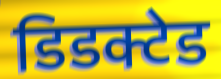
डिडक्टेड